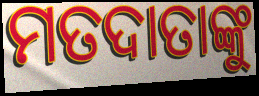
ମତଦାତାଙ୍କୁ